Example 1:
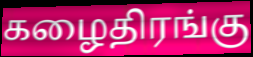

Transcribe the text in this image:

கழைதிரங்கு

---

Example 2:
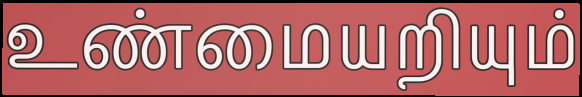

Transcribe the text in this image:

உண்மையறியும்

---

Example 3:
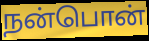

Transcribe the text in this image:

நன்பொன்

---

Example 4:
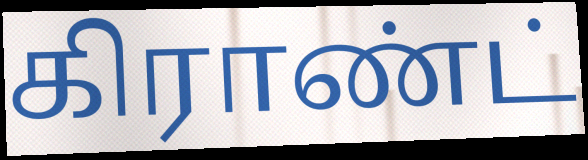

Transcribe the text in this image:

கிராண்ட்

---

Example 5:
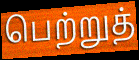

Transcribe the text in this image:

பெற்றுத்